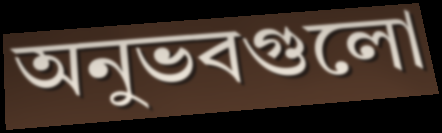
অনুভবগুলো